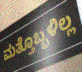
ಮತ್ತೊಬ್ಬಳಿಲ್ಲ